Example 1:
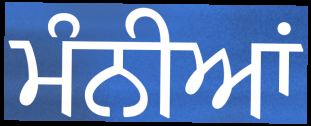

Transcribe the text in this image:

ਮੰਨੀਆਂ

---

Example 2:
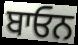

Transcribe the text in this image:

ਬਾਓਨ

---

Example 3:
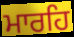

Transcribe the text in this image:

ਮਾਰਹਿ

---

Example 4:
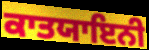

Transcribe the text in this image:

ਕਾਤਯਾਇਨੀ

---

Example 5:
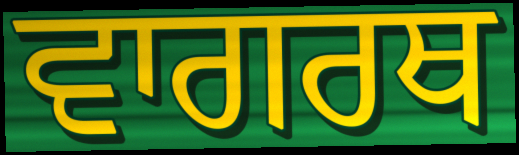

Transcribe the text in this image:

ਵਾਗਰਥ